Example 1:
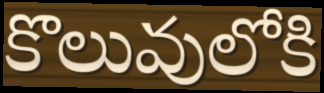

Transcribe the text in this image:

కొలువులోకి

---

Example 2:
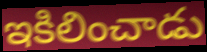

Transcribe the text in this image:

ఇకిలించాడు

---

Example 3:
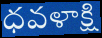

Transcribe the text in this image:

ధవళాక్షి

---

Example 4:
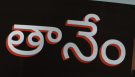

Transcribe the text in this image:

తానేం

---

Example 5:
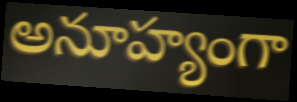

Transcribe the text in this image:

అనూహ్యంగా